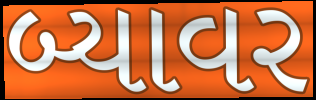
બ્યાવર